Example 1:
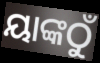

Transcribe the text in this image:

ୟାଙ୍କଠୁଁ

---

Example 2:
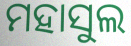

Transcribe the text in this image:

ମହାସୁଲ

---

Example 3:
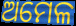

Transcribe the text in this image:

ଅମେଳ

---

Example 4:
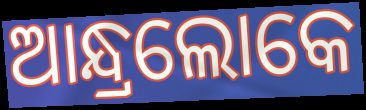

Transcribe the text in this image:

ଆନ୍ଧ୍ରଲୋକେ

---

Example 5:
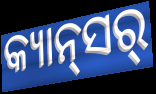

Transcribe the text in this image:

କ୍ୟାନ୍‍ସର୍